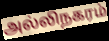
அல்லிநகரம்